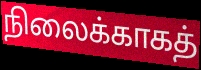
நிலைக்காகத்